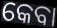
କେବା